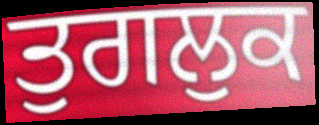
ਤੁਗਲੁਕ